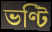
ভণ্টি